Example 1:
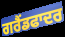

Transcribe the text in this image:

ਗਰੈਂਡਫਾਦਰ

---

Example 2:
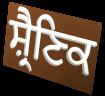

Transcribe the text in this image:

ਸ਼੍ਰੈਣਿਕ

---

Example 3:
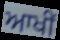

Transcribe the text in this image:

ਆਖੀਂ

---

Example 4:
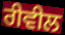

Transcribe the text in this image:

ਰੀਵੀਲ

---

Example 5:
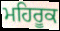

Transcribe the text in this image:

ਮਹਿਰੂਕ